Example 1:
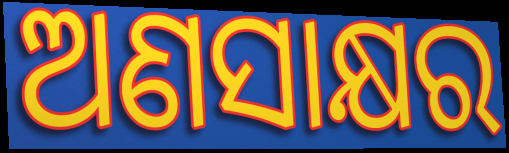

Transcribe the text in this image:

ଅଣସାକ୍ଷର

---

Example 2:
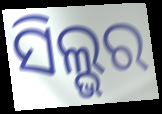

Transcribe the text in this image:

ସିଲ୍ଭର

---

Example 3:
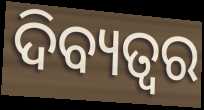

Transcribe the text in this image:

ଦିବ୍ୟତ୍ବର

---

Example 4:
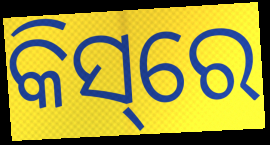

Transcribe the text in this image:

କିସ୍‌ରେ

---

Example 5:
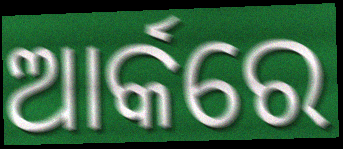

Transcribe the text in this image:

ଆର୍କରେ